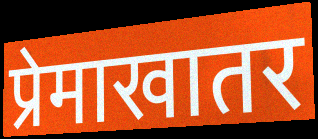
प्रेमाखातर